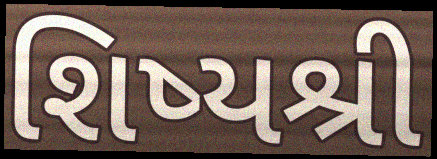
શિષ્યશ્રી